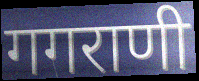
गगराणी